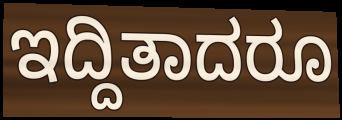
ಇದ್ದಿತಾದರೂ